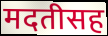
मदतीसह